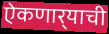
ऐकणार्‍याची